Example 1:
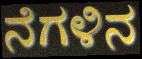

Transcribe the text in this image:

ನೆಗಳಿನ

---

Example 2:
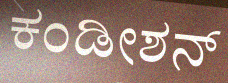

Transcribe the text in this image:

ಕಂಡೀಶನ್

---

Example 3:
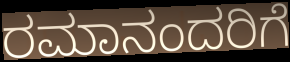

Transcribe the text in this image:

ರಮಾನಂದರಿಗೆ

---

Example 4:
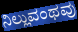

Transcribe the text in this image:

ನಿಲ್ಲುವಂಥವು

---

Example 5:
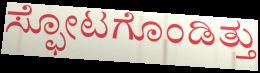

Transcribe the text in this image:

ಸ್ಫೋಟಗೊಂಡಿತ್ತು